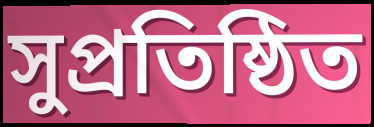
সুপ্ৰতিষ্ঠিত